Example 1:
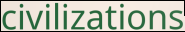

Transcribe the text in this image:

civilizations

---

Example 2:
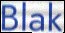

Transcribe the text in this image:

Blak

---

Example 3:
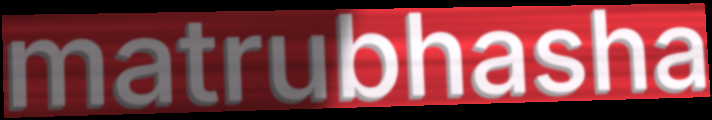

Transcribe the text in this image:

matrubhasha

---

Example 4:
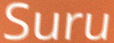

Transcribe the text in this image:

Suru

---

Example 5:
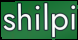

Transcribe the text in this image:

shilpi